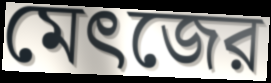
মেৎজের